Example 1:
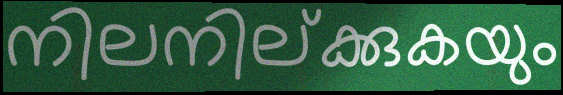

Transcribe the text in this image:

നിലനില്ക്കുകയും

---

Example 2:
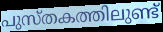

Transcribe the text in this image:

പുസ്തകത്തിലുണ്ട്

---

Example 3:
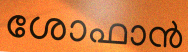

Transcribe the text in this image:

ശോഫാൻ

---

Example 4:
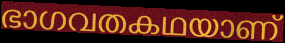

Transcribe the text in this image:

ഭാഗവതകഥയാണ്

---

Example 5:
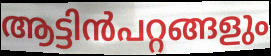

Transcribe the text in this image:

ആട്ടിൻപറ്റങ്ങളും